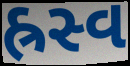
હ્રસ્વ